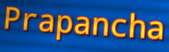
Prapancha